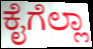
ಕೈಗೆಲ್ಲಾ